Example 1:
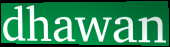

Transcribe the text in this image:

dhawan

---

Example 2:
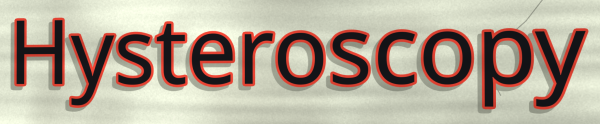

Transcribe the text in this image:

Hysteroscopy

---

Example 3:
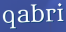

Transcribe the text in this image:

qabri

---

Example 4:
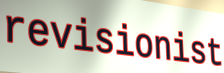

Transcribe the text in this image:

revisionist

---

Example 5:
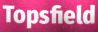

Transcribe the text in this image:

Topsfield